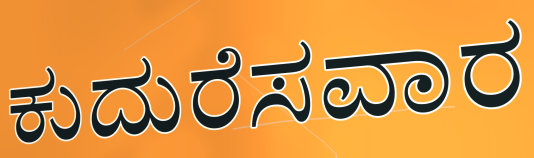
ಕುದುರೆಸವಾರ